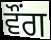
ਵੌਂਗ